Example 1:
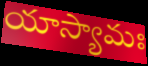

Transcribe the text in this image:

యాస్యామః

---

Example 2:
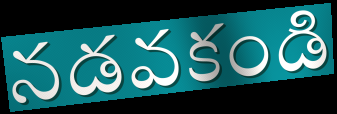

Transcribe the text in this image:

నడవకండి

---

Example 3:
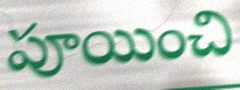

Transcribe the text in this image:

పూయించి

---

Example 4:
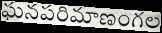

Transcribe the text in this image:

ఘనపరిమాణంగల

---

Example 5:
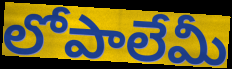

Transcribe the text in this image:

లోపాలేమీ